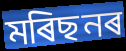
মৰিছনৰ